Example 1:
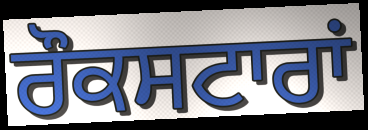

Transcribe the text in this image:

ਰੌਕਸਟਾਰਾਂ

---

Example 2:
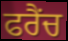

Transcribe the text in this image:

ਫਰੈਂਚ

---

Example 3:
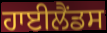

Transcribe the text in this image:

ਹਾਈਲੈਂਡਸ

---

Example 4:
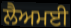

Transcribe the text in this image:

ਲੈਅਮਈ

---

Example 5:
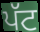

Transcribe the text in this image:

ਪੱਟ